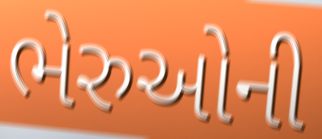
ભેરુઓની